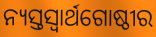
ନ୍ୟସ୍ତସ୍ୱାର୍ଥଗୋଷ୍ଠୀର